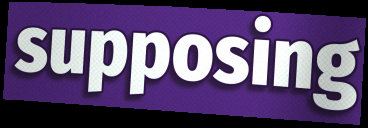
supposing